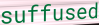
suffused